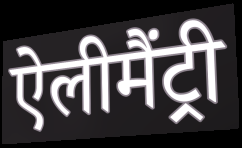
ऐलीमैंट्री